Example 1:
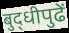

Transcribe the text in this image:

बुद्धीपुढें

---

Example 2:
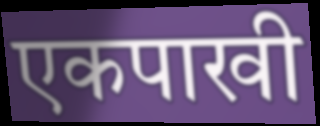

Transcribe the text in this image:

एकपाखी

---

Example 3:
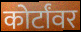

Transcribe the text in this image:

कोर्टांवर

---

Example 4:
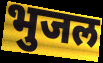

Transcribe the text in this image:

भुजल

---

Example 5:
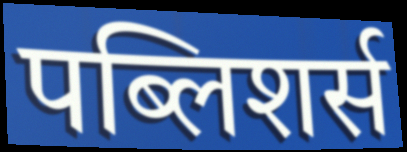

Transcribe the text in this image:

पब्लिशर्स